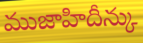
ముజాహిదీన్కు